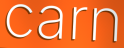
carn